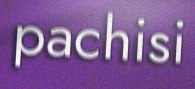
pachisi